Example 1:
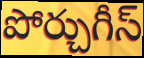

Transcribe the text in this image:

పోర్చుగీస్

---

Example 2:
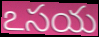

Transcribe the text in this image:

ఽసయ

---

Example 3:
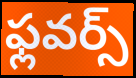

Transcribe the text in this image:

ఫ్లవర్స్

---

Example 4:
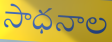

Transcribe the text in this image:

సాధనాల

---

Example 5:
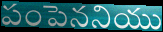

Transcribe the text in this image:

పంపెననియు